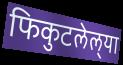
फिकुटलेल्या